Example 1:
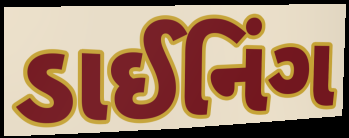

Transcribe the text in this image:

ડાઈનિંગ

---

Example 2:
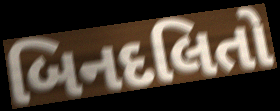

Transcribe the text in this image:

બિનદલિતો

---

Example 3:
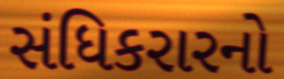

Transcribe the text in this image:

સંધિકરારનો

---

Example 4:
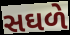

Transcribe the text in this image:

સઘળે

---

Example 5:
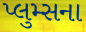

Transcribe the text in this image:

પ્લુમ્સના